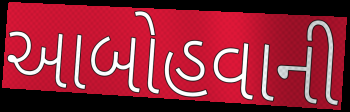
આબોહવાની